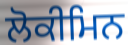
ਲੋਕੀਮਿਨ